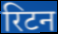
रिटन